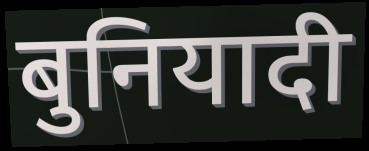
बुनियादी